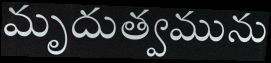
మృదుత్వమును